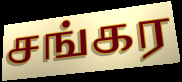
சங்கர